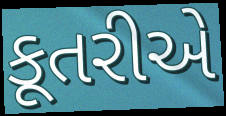
કૂતરીએ